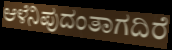
ಆಳೆನಿಪುದಂತಾಗದಿರೆ